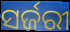
ସର୍ଜରୀ